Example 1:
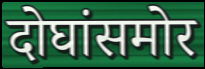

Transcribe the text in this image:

दोघांसमोर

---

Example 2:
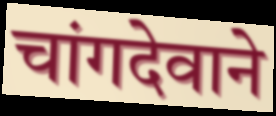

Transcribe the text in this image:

चांगदेवाने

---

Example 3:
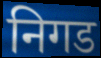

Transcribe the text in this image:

निगड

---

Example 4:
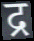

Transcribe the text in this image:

द्र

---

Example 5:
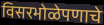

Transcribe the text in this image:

विसरभोळेपणाचे